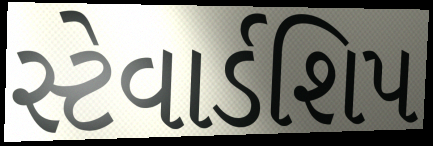
સ્ટેવાર્ડશિપ